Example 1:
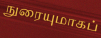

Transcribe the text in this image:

நுரையுமாகப்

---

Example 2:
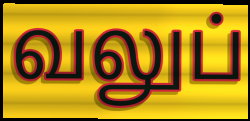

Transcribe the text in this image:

வலுப்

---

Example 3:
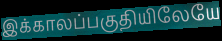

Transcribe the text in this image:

இக்காலப்பகுதியிலேயே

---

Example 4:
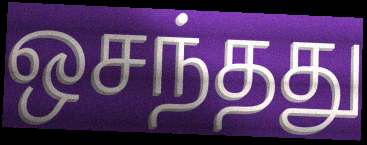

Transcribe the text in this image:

ஒசந்தது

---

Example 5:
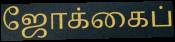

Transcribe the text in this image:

ஜோக்கைப்